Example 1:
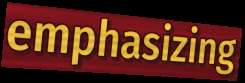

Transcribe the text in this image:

emphasizing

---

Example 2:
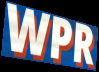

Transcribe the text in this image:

WPR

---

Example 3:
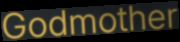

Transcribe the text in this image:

Godmother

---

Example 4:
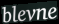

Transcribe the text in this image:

blevne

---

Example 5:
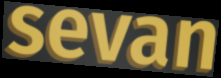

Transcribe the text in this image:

sevan